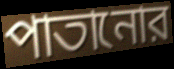
পাতানোর